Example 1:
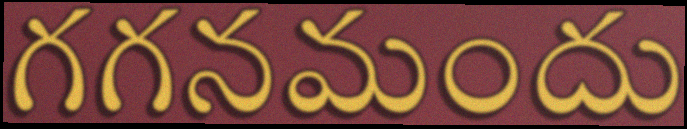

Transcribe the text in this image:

గగనమందు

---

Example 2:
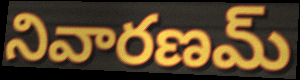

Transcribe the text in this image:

నివారణమ్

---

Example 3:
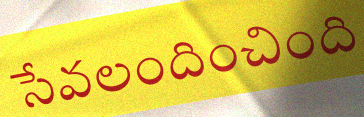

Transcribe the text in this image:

సేవలందించింది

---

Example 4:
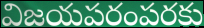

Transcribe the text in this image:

విజయపరంపరకు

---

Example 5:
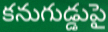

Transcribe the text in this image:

కనుగుడ్డుపై